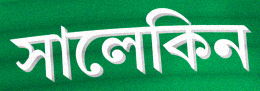
সালেকিন